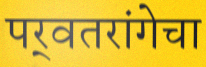
पर्वतरांगेचा